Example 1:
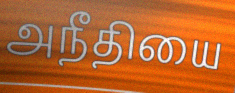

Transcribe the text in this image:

அநீதியை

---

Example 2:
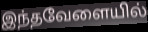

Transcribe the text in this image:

இந்தவேளையில்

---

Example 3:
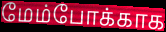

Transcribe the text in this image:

மேம்போக்காக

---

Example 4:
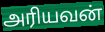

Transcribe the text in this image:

அரியவன்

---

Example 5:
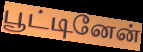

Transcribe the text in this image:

பூட்டினேன்